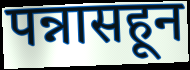
पन्नासहून